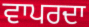
ਵਾਪਰਦਾ